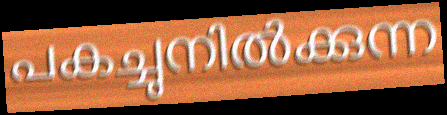
പകച്ചുനിൽക്കുന്ന